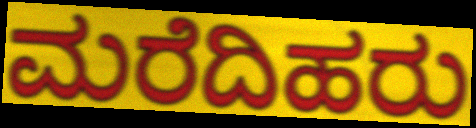
ಮರೆದಿಹರು